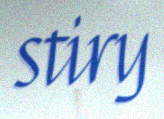
stiry